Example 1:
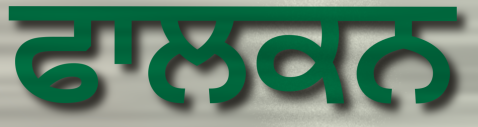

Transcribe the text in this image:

ਫਾਲਕਨ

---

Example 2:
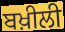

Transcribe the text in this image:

ਬਖ਼ੀਲੀ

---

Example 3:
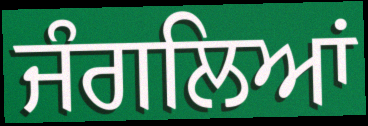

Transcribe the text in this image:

ਜੰਗਲਿਆਂ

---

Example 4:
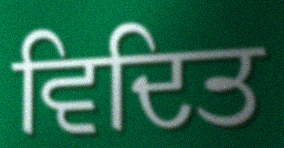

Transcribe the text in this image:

ਵਿਦਿਤ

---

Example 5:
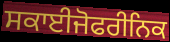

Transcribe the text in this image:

ਸਕਾਈਜੋਫਰੀਨਿਕ